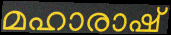
മഹാരാഷ്